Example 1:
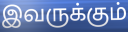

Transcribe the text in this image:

இவருக்கும்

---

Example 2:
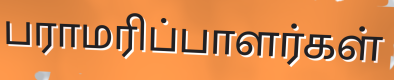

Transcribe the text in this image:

பராமரிப்பாளர்கள்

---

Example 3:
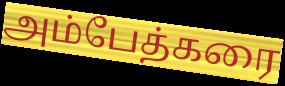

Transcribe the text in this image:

அம்பேத்கரை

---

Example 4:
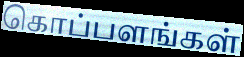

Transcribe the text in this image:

கொப்பளங்கள்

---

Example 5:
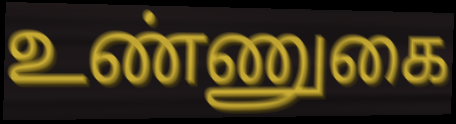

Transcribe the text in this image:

உண்ணுகை